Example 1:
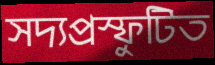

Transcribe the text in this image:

সদ্যপ্রস্ফুটিত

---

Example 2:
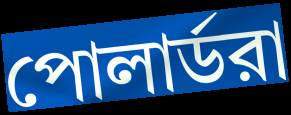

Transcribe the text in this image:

পোলার্ডরা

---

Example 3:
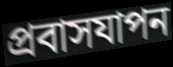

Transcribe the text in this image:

প্রবাসযাপন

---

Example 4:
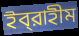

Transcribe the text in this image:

ইব্‌রাহীম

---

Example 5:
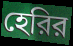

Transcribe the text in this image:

হেরির